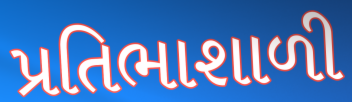
પ્રતિભાશાળી